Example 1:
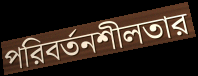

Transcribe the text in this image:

পরিবর্তনশীলতার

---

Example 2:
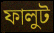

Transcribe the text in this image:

ফালুট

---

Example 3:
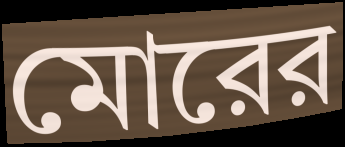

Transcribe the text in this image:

মোরের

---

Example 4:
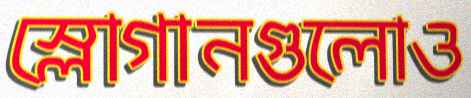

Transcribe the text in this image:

স্লোগানগুলোও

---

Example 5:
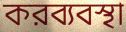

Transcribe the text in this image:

করব্যবস্থা